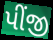
પીંજી